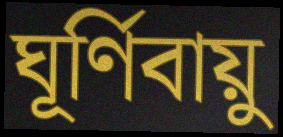
ঘূর্ণিবায়ু